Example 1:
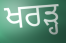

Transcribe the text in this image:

ਖਰੜ੍ਹ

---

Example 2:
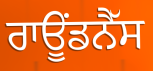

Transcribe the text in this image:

ਰਾਊਂਡਨੈੱਸ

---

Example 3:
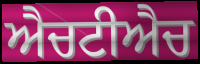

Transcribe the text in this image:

ਐਚਟੀਐਚ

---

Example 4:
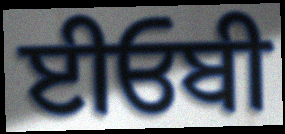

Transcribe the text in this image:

ਈਓਬੀ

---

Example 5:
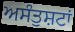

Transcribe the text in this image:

ਅਸੰਤੁਸ਼ਟਾਂ